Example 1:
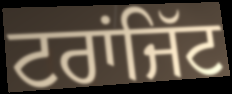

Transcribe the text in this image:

ਟਰਾਂਜਿੱਟ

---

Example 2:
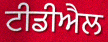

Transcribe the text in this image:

ਟੀਡੀਐਲ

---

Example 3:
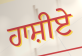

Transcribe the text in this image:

ਹਾਸ਼ੀਏ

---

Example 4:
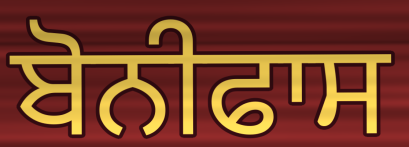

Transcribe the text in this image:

ਬੋਨੀਫਾਸ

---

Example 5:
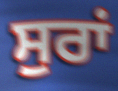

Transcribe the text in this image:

ਸੁਰਾਂ